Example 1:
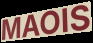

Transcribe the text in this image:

MAOIS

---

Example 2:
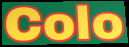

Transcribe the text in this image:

Colo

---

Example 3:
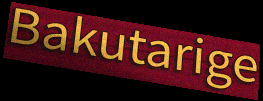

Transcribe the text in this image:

Bakutarige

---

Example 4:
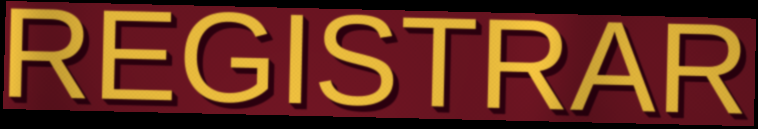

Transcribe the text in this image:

REGISTRAR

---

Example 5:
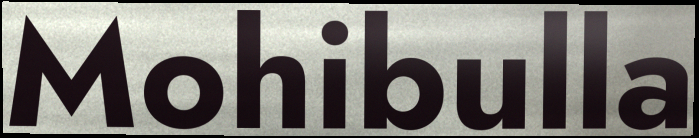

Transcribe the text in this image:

Mohibulla